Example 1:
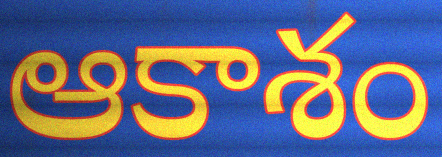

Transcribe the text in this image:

ఆకాశం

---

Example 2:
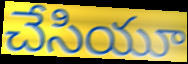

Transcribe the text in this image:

చేసియూ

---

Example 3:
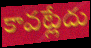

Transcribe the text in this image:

కావట్లేదు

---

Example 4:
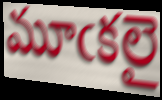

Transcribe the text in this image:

మూఁకలై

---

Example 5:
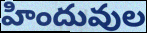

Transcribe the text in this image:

హిందువుల